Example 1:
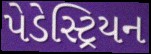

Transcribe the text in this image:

પેડેસ્ટ્રિયન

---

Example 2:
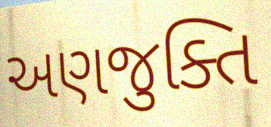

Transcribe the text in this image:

અણજુક્તિ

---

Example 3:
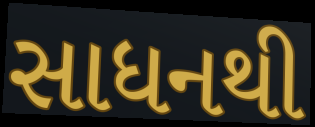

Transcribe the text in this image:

સાધનથી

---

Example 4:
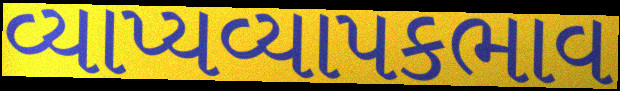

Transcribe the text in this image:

વ્યાપ્યવ્યાપકભાવ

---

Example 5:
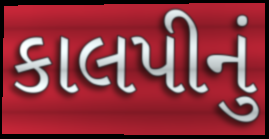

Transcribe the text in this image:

કાલપીનું